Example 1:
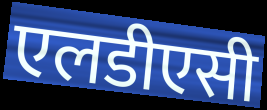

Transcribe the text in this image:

एलडीएसी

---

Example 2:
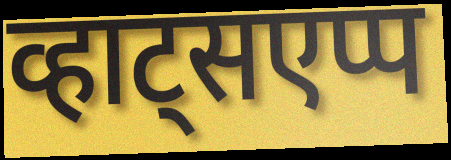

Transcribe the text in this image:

व्हाट्सएप्प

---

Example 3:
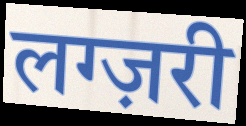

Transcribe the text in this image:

लग्ज़री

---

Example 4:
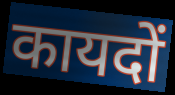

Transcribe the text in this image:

कायदों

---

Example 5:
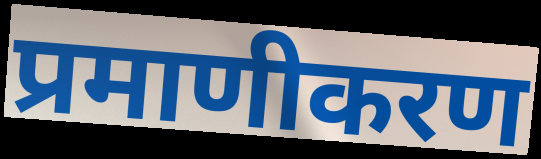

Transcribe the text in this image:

प्रमाणीकरण